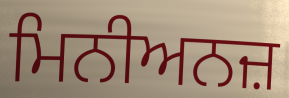
ਮਿਨੀਅਨਜ਼